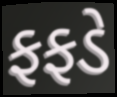
ફફડે